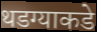
थडग्याकडे